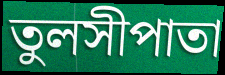
তুলসীপাতা